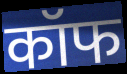
कॉफ